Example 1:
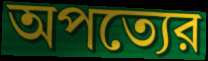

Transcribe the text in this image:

অপত্যের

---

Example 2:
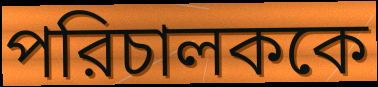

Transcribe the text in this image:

পরিচালককে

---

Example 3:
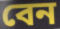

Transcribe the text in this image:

বেন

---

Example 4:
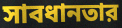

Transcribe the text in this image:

সাবধানতার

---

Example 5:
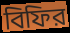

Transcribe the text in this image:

বিফির